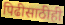
पिढीसाठीही